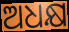
ଅଧକ୍ଷ